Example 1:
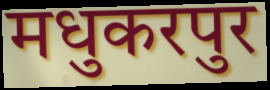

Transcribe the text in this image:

मधुकरपुर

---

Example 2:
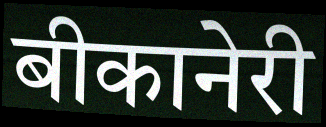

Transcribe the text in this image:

बीकानेरी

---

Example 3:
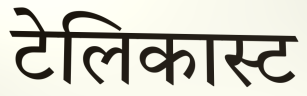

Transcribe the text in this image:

टेलिकास्ट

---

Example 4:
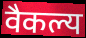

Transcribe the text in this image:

वैकल्य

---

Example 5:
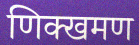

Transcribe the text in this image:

णिक्खमण